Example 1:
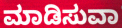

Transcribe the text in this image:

ಮಾಡಿಸುವಾ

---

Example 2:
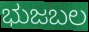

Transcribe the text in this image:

ಭುಜಬಲ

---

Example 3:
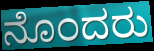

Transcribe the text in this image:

ನೊಂದರು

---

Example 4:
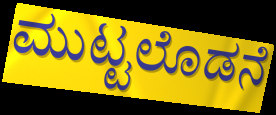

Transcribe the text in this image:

ಮುಟ್ಟಲೊಡನೆ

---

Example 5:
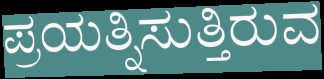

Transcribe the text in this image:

ಪ್ರಯತ್ನಿಸುತ್ತಿರುವ